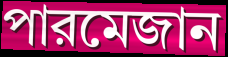
পারমেজান